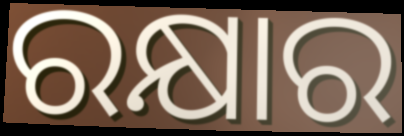
ରକ୍ଷାର